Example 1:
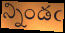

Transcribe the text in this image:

న్నిండఁ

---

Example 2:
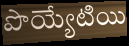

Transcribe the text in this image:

పొయ్యేటియి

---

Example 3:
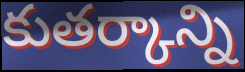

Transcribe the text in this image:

కుతర్కాన్ని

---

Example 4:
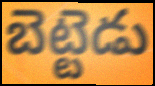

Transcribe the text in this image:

బెట్టెడు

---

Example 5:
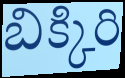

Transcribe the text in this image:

బిక్కిరి